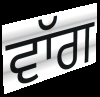
ਵਾੱਗ